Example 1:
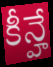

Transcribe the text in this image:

కీన్హే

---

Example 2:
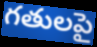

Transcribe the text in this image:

గతులపై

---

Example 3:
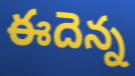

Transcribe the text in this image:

ఈదెన్న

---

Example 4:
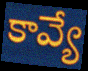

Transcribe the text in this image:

కావ్యే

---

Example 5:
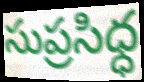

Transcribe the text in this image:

సుప్రసిధ్ధ